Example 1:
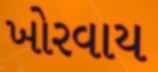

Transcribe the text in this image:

ખોરવાય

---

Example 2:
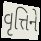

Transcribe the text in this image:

વૃત્તિને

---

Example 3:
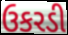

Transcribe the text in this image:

ઉકરડી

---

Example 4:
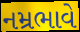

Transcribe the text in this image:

નમ્રભાવે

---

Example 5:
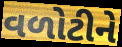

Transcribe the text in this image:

વળોટીને